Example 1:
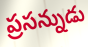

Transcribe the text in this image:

ప్రసన్నుడు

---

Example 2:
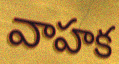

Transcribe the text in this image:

వాహక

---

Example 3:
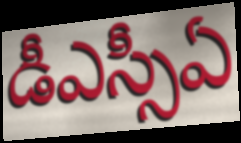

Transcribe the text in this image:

డీఎస్సీఏ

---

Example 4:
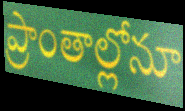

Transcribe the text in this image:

ప్రాంతాల్లోనూ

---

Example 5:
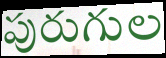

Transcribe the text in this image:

పురుగుల